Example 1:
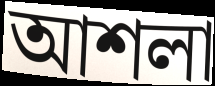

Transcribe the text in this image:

আশলা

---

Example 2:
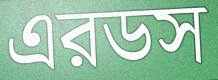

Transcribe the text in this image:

এরডস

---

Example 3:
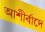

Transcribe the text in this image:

আশীর্বাদে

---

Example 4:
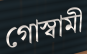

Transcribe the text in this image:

গোস্বামী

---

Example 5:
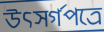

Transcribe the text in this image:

উৎসর্গপত্রে